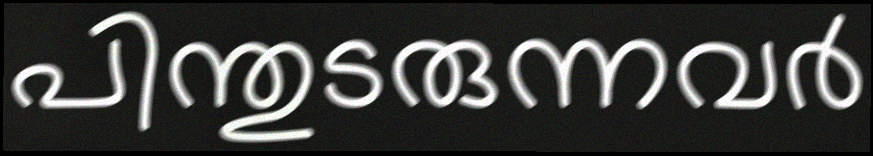
പിന്തുടരുന്നവർ